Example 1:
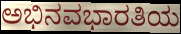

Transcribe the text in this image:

ಅಭಿನವಭಾರತಿಯ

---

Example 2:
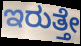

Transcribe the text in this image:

ಇರುತ್ತೇ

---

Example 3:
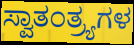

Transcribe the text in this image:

ಸ್ವಾತಂತ್ರ್ಯಗಳ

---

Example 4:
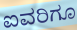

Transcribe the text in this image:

ಐವರಿಗೂ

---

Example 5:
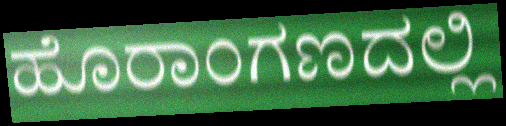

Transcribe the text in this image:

ಹೊರಾಂಗಣದಲ್ಲಿ